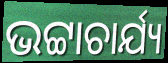
ଭଟ୍ଟାଚାର୍ଯ୍ୟ